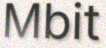
Mbit